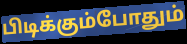
பிடிக்கும்போதும்